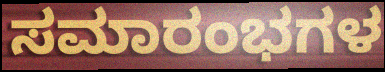
ಸಮಾರಂಭಗಳ